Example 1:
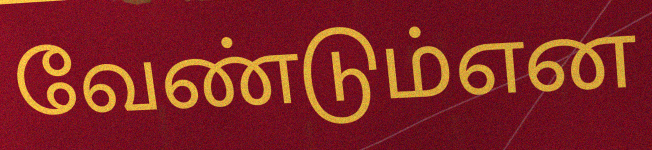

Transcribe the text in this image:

வேண்டும்என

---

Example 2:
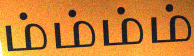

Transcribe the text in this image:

ம்ம்ம்ம்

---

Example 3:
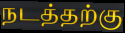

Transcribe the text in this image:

நடத்தற்கு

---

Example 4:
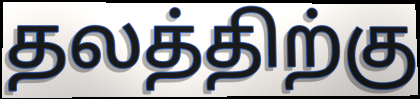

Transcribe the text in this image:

தலத்திற்கு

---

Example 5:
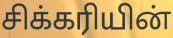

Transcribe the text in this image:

சிக்கரியின்